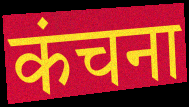
कंचना